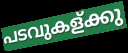
പടവുകള്ക്കു